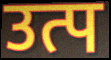
उत्प